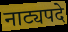
नाट्यपदे